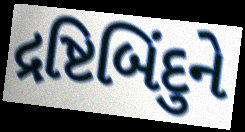
દ્રષ્ટિબિંદુને